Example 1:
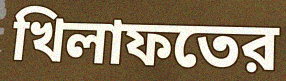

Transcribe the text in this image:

খিলাফতের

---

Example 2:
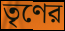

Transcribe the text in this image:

তৃণের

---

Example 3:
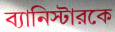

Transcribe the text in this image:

ব্যানিস্টারকে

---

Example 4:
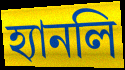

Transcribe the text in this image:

হ্যানলি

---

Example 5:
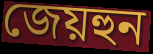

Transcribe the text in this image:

জেয়হুন